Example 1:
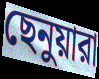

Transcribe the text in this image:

ছেনুয়ারা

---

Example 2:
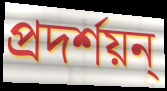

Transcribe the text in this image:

প্রদর্শয়ন্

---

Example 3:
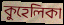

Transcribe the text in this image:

কুহেলিকা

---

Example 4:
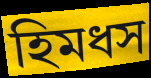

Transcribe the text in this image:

হিমধস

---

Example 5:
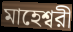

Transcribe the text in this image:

মাহেশ্বরী